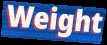
Weight